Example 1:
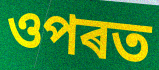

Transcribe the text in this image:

ওপৰত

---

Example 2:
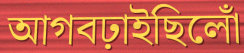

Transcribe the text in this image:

আগবঢ়াইছিলোঁ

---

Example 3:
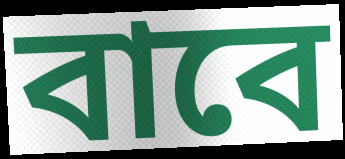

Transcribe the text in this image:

বাবে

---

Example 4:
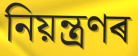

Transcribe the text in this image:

নিয়ন্ত্ৰণৰ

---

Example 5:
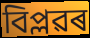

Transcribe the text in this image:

বিপ্লৱৰ